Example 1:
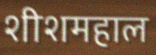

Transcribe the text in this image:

शीशमहाल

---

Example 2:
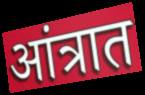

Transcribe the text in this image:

आंत्रात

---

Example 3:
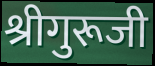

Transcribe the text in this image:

श्रीगुरूजी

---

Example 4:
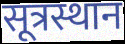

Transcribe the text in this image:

सूत्रस्थान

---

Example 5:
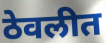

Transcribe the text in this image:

ठेवलीत